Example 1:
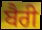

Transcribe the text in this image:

ਬੈਰੀ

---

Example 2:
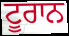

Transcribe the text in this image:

ਟੂਰਾਨ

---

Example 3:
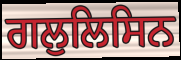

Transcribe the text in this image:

ਗਲੁਲਿਸਿਨ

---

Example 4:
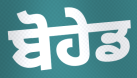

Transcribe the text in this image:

ਬੋਹੇਡ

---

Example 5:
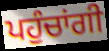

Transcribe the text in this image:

ਪਹੁੰਚਾਂਗੀ